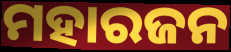
ମହାରଜନ